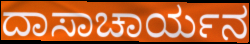
ದಾಸಾಚಾರ್ಯನ